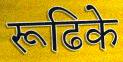
रूढिके